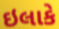
ઇલાકે